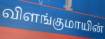
விளங்குமாயின்